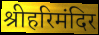
श्रीहरिमंदिर